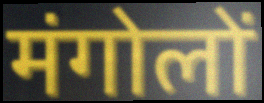
मंगोलों